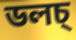
ডলচ্